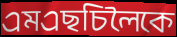
এমএছচিলৈকে